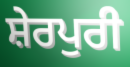
ਸ਼ੇਰਪੁਰੀ